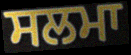
ਸਲਮਾ